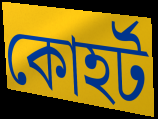
কোহর্ট